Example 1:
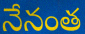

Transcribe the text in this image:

నేనంత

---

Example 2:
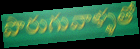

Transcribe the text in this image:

పొరుగువాళ్ళతో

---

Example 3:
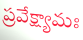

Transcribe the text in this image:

ప్రవేక్ష్యామః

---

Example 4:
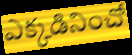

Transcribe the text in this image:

ఎక్కడినించో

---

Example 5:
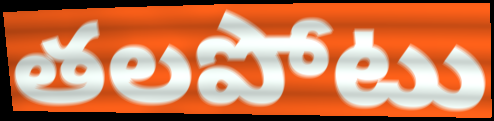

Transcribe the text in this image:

తలపోటు